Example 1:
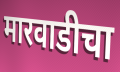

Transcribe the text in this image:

मारवाडीचा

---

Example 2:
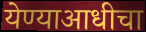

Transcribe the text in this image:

येण्याआधीचा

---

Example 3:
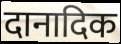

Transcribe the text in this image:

दानादिक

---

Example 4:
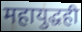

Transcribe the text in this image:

महायुद्धही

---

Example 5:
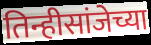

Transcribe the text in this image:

तिन्हीसांजेच्या